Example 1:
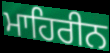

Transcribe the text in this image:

ਮਾਹਿਰੀਨ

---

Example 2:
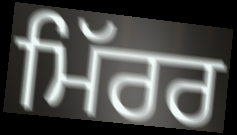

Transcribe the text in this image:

ਮਿੱਰਰ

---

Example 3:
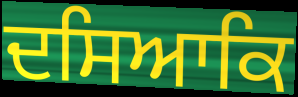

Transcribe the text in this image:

ਦਸਿਆਕਿ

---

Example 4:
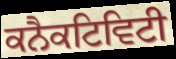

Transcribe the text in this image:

ਕਨੈਕਟਿਵਿਟੀ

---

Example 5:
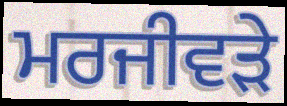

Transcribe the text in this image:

ਮਰਜੀਵੜੇ